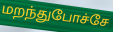
மறந்துபோச்சே